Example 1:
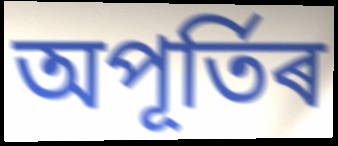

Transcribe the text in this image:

অপূৰ্তিৰ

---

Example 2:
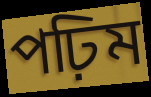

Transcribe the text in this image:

পঢ়িম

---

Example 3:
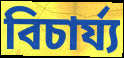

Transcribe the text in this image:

বিচাৰ্য্য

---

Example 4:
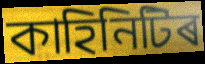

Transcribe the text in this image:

কাহিনিটিৰ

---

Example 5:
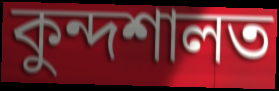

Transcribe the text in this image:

কুন্দশালত